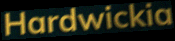
Hardwickia